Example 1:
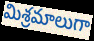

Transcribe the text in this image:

మిశ్రమాలుగా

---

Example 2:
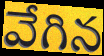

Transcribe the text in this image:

వేగిన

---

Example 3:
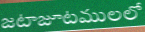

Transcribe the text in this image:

జటాజూటములలో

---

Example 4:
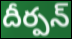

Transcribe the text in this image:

దీర్పన్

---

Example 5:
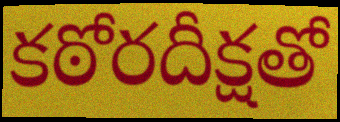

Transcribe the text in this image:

కఠోరదీక్షతో